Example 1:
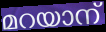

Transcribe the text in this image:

മറയാന്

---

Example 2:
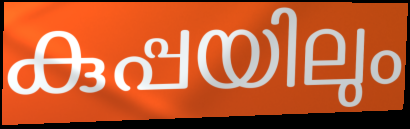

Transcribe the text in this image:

കുപ്പയിലും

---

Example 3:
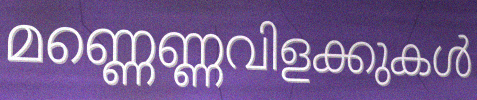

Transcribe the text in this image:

മണ്ണെണ്ണവിളക്കുകൾ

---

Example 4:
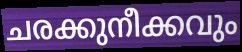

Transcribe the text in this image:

ചരക്കുനീക്കവും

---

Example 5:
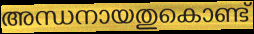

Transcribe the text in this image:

അന്ധനായതുകൊണ്ട്